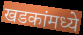
खडकांमध्ये